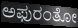
ಅಫುರಂತೋ